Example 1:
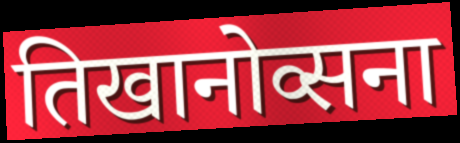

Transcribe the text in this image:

तिखानोव्सना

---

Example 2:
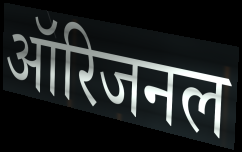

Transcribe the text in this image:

ऑरिजनल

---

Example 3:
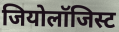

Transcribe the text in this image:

जियोलॉजिस्ट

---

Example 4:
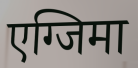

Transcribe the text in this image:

एग्जिमा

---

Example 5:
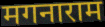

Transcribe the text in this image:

मगनाराम